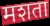
मशता